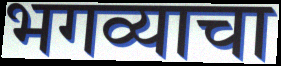
भगव्याचा